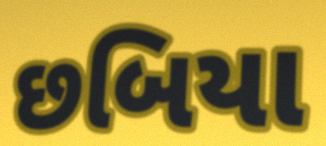
છબિયા